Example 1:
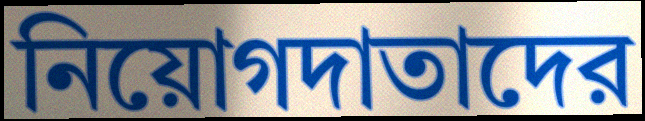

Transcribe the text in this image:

নিয়োগদাতাদের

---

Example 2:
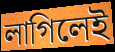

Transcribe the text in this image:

লাগিলেই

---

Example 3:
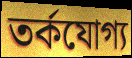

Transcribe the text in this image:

তর্কযোগ্য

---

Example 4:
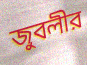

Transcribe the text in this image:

জুবলীর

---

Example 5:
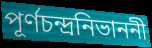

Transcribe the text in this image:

পূর্ণচন্দ্রনিভাননী